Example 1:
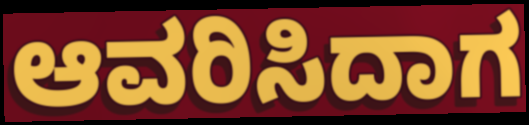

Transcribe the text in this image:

ಆವರಿಸಿದಾಗ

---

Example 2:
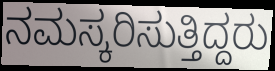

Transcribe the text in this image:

ನಮಸ್ಕರಿಸುತ್ತಿದ್ದರು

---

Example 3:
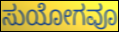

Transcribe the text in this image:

ಸುಯೋಗವೂ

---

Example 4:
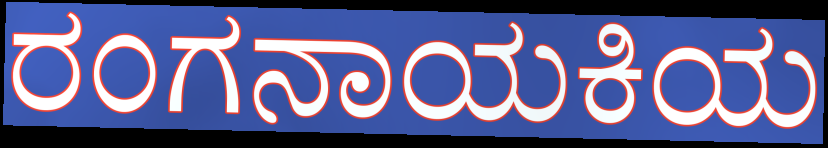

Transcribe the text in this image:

ರಂಗನಾಯಕಿಯ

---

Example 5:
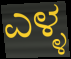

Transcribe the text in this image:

ಎಳ್ಳ